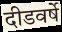
दीडवर्षे